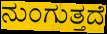
ನುಂಗುತ್ತದೆ